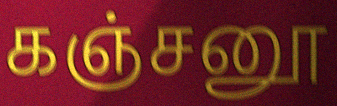
கஞ்சனூ